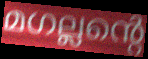
മഗല്ലന്റെ